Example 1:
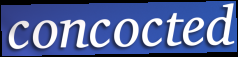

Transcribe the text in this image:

concocted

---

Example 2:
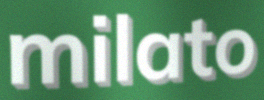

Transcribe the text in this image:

milato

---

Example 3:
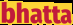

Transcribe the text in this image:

bhatta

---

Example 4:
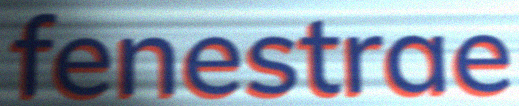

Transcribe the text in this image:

fenestrae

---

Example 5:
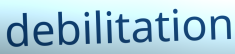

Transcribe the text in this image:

debilitation